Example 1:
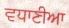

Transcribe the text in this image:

ਵਧਾਣੀਆ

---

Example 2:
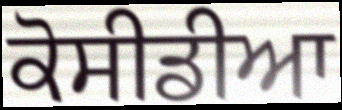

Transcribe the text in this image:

ਕੋਸੀਡੀਆ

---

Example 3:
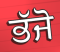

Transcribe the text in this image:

ਭੱਜੋ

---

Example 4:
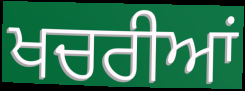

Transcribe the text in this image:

ਖਚਰੀਆਂ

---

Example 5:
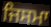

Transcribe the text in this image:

ਜਿਸਮਾ